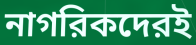
নাগরিকদেরই